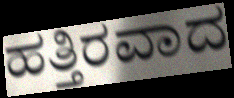
ಹತ್ತಿರವಾದ